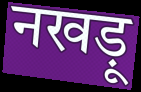
नखड़ू